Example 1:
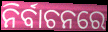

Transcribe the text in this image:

ନିର୍ବାଚନରେ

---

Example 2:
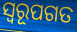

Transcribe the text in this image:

ସ୍ଵରୂପଗତ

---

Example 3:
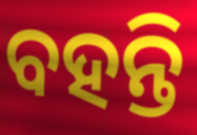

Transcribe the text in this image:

ବହନ୍ତି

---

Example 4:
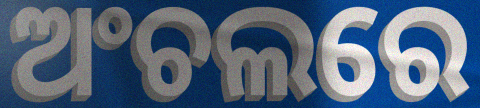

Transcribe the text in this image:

ଅଂଚଲରେ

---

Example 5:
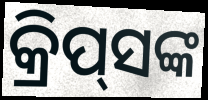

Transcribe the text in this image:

କ୍ରିପ୍‌ସଙ୍କ